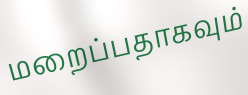
மறைப்பதாகவும்